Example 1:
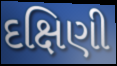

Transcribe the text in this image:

દક્ષિણી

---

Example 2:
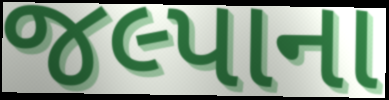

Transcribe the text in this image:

જલ્પાના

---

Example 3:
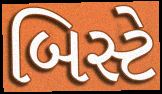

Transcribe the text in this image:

બિસ્ટે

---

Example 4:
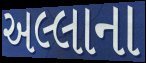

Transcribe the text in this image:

અલ્લાના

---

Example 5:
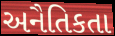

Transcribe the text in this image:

અનૈતિકતા